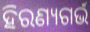
ହିରଣ୍ୟଗର୍ଭ